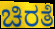
ಚಿರತೆ